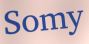
Somy